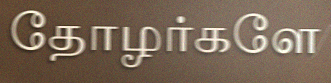
தோழர்களே